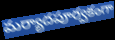
మర్యాదపూర్వకంగా